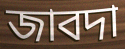
জাবদা